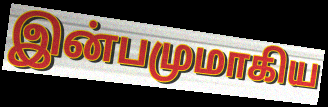
இன்பமுமாகிய